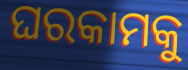
ଘରକାମକୁ